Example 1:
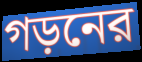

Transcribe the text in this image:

গড়নের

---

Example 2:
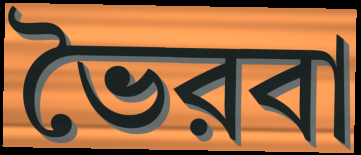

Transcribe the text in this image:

ভৈরবা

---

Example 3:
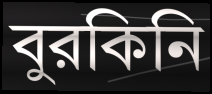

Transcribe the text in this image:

বুরকিনি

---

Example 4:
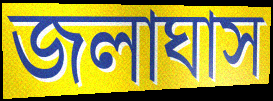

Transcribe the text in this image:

জলাঘাস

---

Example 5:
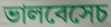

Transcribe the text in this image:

ভালবেসেচ